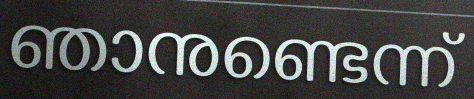
ഞാനുണ്ടെന്ന്